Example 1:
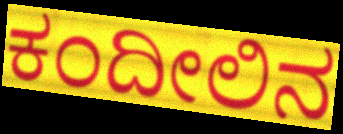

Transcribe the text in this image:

ಕಂದೀಲಿನ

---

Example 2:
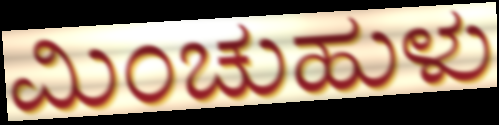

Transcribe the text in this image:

ಮಿಂಚುಹುಳು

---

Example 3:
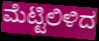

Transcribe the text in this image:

ಮೆಟ್ಟಿಲಿಳಿದ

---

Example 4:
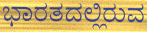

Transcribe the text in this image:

ಭಾರತದಲ್ಲಿರುವ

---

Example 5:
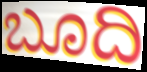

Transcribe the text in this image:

ಬೂದಿ